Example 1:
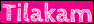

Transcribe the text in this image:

Tilakam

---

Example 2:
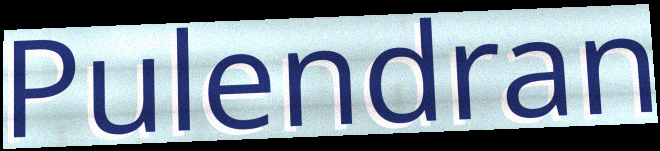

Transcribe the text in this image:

Pulendran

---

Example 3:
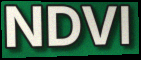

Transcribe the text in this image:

NDVI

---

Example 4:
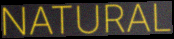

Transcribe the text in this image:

NATURAL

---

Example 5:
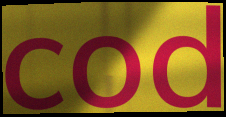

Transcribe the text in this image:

cod